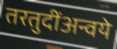
तरतुदींअन्वये